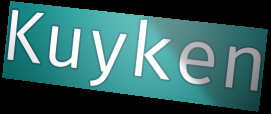
Kuyken